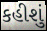
કહીશું